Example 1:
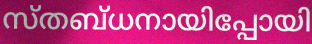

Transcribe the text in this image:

സ്തബ്ധനായിപ്പോയി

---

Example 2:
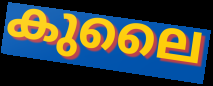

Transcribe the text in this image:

കുലൈ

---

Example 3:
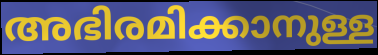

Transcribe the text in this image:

അഭിരമിക്കാനുള്ള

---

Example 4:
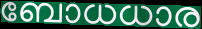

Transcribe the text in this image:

ബോധധാര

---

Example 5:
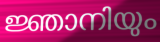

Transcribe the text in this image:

ജ്ഞാനിയും